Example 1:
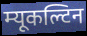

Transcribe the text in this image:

म्यूकल्टिन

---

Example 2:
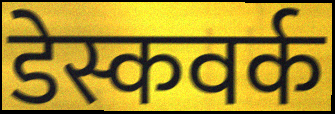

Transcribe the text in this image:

डेस्कवर्क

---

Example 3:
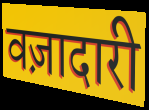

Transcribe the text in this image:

वज़ादारी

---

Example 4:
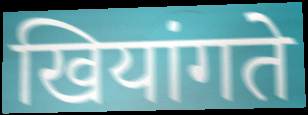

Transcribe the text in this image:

खियांगते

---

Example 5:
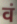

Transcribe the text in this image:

वं